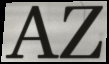
AZ